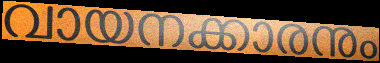
വായനക്കാരനും